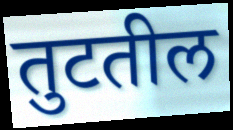
तुटतील